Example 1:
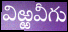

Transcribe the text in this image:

విఱ్ఱవీగు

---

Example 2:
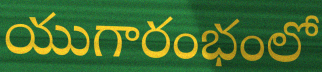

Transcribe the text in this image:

యుగారంభంలో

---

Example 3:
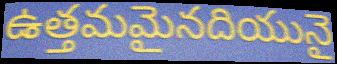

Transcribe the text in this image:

ఉత్తమమైనదియునై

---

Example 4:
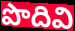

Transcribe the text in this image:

పొదివి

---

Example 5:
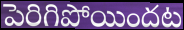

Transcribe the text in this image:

పెరిగిపోయిందట